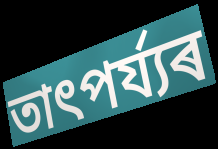
তাৎপৰ্য্যৰ